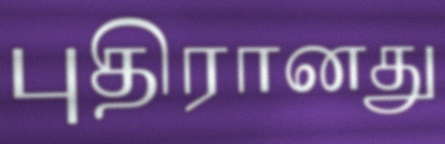
புதிரானது